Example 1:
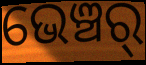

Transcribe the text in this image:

ଭେଞ୍ଚର୍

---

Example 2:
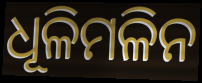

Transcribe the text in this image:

ଧୂଳିମଳିନ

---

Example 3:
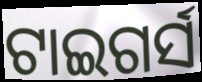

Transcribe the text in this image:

ଟାଇଗର୍ସ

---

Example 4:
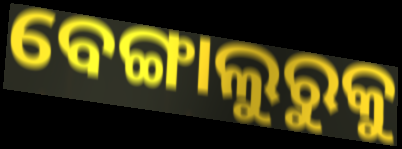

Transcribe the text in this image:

ବେଙ୍ଗାଲୁରୁକୁ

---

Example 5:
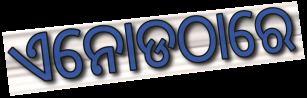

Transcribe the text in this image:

ଏନୋଡଠାରେ